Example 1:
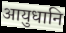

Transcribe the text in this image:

आयुधानि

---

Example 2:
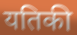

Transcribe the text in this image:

यतिकी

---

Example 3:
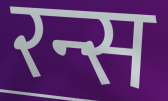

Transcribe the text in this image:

रन्स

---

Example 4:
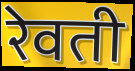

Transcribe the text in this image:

रेवती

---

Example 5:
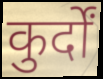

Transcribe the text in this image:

कुर्दों